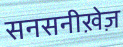
सनसनीख़ेज़